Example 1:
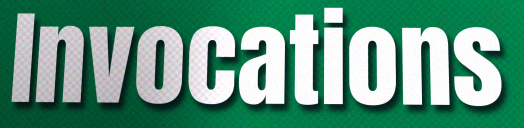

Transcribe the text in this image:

Invocations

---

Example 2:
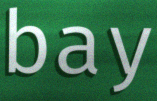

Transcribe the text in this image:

bay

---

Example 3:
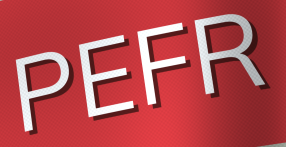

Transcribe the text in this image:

PEFR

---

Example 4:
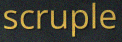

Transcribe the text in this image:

scruple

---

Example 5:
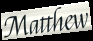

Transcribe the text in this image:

Matthew